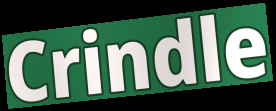
Crindle